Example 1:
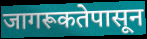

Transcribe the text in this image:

जागरूकतेपासून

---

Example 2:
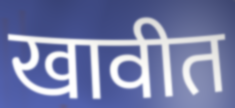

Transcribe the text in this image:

खावीत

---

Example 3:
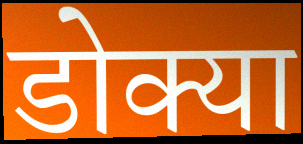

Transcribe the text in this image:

डोक्या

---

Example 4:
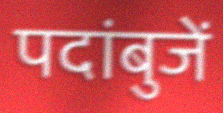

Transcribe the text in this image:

पदांबुजें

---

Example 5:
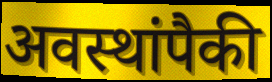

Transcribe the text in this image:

अवस्थांपैकी